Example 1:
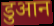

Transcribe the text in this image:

डुआन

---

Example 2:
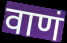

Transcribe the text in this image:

वाणं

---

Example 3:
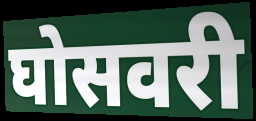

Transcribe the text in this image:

घोसवरी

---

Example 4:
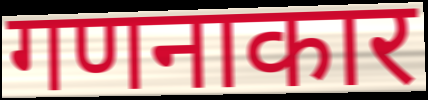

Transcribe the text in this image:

गणनाकार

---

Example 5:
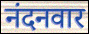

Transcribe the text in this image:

नंदनवार